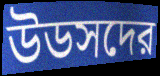
উডসদের